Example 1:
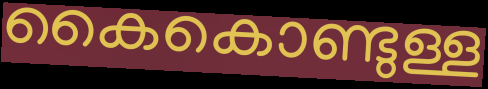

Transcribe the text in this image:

കൈകൊണ്ടുള്ള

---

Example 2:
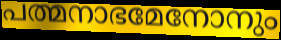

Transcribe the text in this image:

പത്മനാഭമേനോനും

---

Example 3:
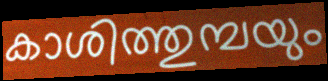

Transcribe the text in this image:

കാശിത്തുമ്പയും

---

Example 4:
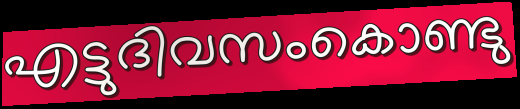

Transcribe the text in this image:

എട്ടുദിവസംകൊണ്ടു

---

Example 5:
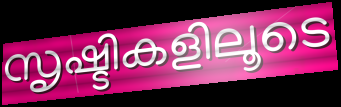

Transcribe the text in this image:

സൃഷ്ടികളിലൂടെ